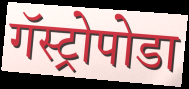
गॅस्ट्रोपोडा